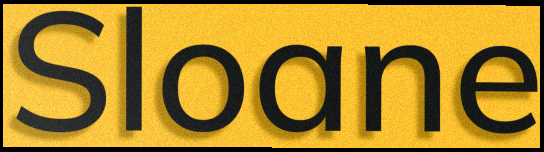
Sloane